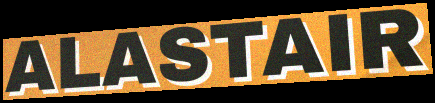
ALASTAIR